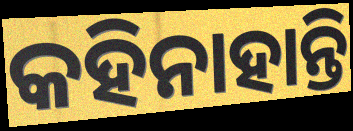
କହିନାହାନ୍ତି